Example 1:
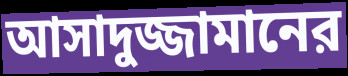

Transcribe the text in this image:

আসাদুজ্জামানের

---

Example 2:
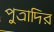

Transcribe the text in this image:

পুত্রাদির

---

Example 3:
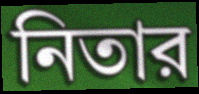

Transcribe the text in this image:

নিতার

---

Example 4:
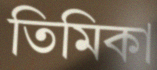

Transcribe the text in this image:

তিমিকা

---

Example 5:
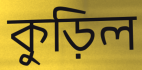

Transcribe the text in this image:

কুড়িল